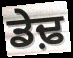
ਡੇਢ਼